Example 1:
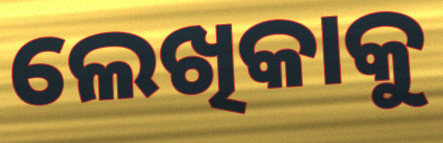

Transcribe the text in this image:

ଲେଖିକାକୁ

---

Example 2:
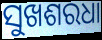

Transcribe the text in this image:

ସୁଖଶରଧା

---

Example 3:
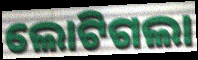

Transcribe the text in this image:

ଲୋଟିଗଲା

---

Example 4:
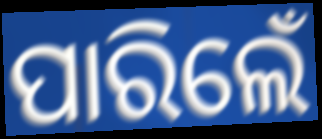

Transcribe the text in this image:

ପାରିଲେଁ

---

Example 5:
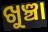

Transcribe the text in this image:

ଖୁଞ୍ଚା